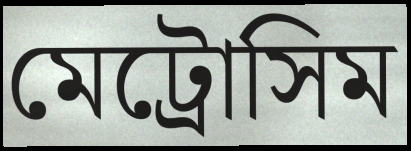
মেট্রোসিম